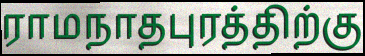
ராமநாதபுரத்திற்கு